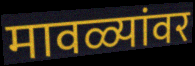
मावळ्यांवर